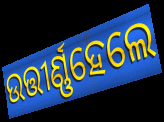
ଉତ୍ତୀର୍ଣ୍ଣହେଲେ